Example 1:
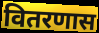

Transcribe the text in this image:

वितरणास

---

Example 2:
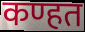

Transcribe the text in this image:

कण्हत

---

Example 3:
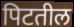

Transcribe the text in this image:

पिटतील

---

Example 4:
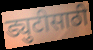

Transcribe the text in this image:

ड्युटीसाठी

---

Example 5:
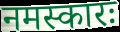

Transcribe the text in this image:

नमस्कारः